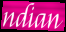
ndian